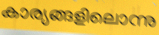
കാര്യങ്ങളിലൊന്നു